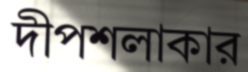
দীপশলাকার